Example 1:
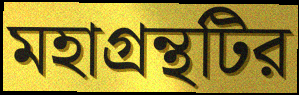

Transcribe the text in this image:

মহাগ্রন্থটির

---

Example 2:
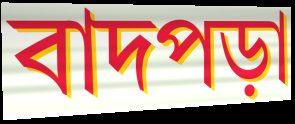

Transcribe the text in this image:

বাদপড়া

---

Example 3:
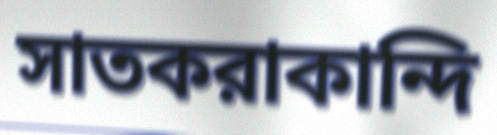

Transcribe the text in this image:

সাতকরাকান্দি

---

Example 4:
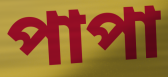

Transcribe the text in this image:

পাপা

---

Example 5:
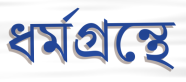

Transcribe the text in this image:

ধর্মগ্রন্থে